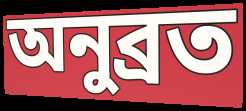
অনুব্রত